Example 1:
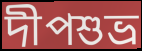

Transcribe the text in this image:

দীপশুভ্র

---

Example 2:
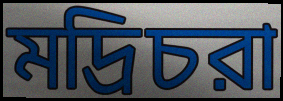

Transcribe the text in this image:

মদ্রিচরা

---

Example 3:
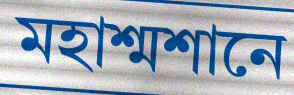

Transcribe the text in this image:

মহাশ্মশানে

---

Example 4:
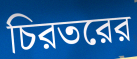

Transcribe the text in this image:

চিরতরের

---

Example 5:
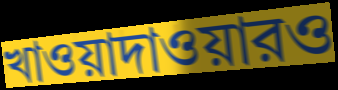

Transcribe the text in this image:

খাওয়াদাওয়ারও